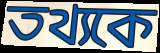
তথ্যকে